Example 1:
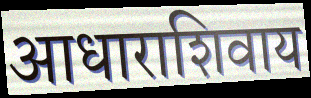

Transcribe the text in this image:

आधाराशिवाय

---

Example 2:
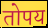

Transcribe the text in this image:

तोपय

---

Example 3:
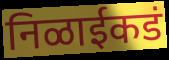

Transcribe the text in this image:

निळाईकडं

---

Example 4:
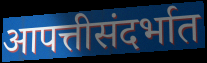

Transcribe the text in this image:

आपत्तीसंदर्भात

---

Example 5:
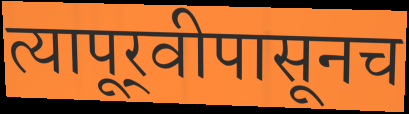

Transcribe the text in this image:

त्यापूर्वीपासूनच